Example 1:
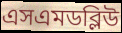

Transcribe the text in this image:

এসএমডব্লিউ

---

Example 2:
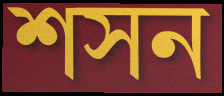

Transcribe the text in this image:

শসন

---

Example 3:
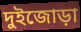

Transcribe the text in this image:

দুইজোড়া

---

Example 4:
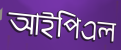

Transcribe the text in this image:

আইপিএল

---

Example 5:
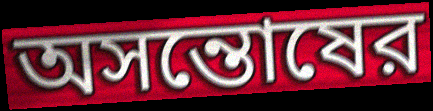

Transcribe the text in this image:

অসন্তোষের